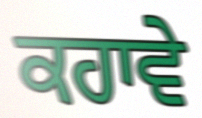
ਕਹਾਵੇ